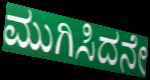
ಮುಗಿಸಿದನೇ